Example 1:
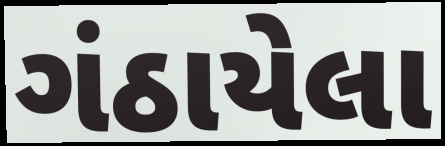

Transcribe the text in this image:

ગંઠાયેલા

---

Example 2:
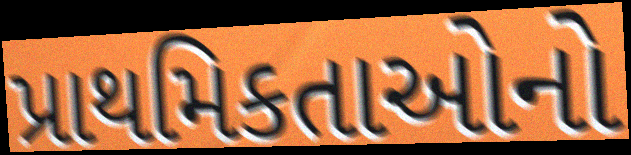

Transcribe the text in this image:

પ્રાથમિકતાઓનો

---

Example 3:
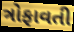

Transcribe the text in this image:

ત્રોફાવતી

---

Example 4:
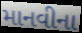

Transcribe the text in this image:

માનવીના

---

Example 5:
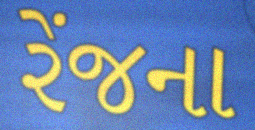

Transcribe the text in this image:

રેંજના